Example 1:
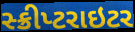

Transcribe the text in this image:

સ્ક્રીપ્ટરાઇટર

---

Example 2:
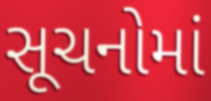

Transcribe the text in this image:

સૂચનોમાં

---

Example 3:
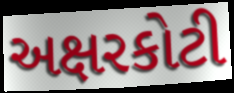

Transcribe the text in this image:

અક્ષરકોટી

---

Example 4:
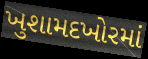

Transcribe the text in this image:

ખુશામદખોરમાં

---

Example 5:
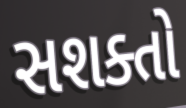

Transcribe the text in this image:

સશક્તો